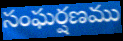
సంఘర్షణము